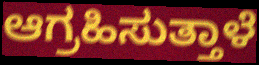
ಆಗ್ರಹಿಸುತ್ತಾಳೆ